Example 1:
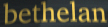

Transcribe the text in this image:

bethelan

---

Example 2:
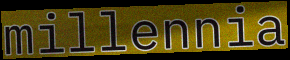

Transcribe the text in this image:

millennia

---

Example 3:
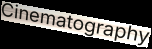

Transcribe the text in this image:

Cinematography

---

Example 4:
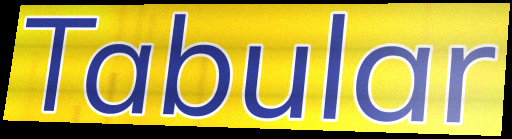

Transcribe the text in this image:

Tabular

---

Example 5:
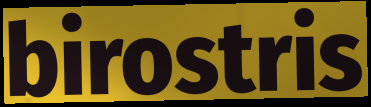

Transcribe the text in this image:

birostris